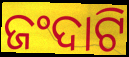
ଜଂଦାଟି